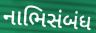
નાભિસંબંધ